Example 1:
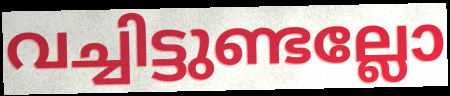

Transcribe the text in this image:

വച്ചിട്ടുണ്ടല്ലോ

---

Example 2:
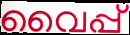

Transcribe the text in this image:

വൈപ്പ്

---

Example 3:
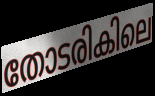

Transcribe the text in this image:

തോടരികിലെ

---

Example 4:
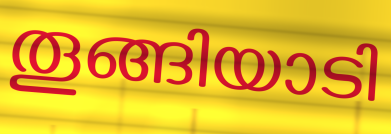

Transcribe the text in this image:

തൂങ്ങിയാടി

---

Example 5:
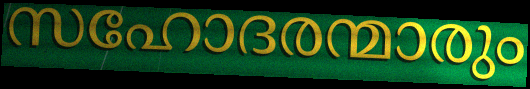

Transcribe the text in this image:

സഹോദരന്മാരും